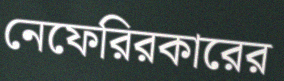
নেফেরিরকারের